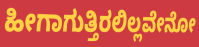
ಹೀಗಾಗುತ್ತಿರಲಿಲ್ಲವೇನೋ